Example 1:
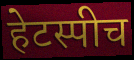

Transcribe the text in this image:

हेटस्पीच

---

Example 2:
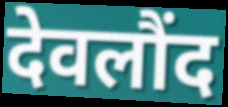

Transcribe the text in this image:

देवलौंद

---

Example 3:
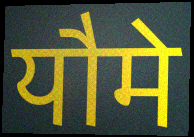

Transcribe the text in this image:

यौमे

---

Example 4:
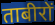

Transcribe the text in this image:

ताबीरों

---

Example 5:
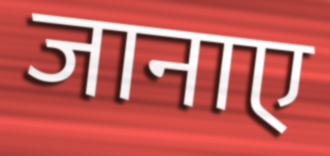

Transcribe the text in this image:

जानाए